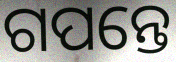
ଗପନ୍ତେ